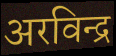
अरविन्द्र